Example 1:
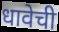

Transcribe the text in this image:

धावेची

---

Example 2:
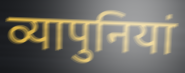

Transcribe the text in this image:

व्यापुनियां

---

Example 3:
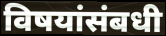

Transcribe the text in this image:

विषयांसंबधी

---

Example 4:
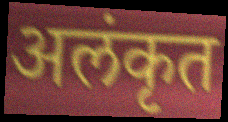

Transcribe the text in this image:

अलंकृत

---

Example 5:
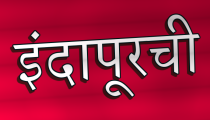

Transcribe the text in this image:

इंदापूरची